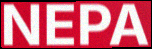
NEPA